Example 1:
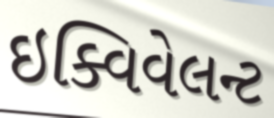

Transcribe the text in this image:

ઇક્વિવેલન્ટ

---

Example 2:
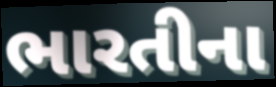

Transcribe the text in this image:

ભારતીના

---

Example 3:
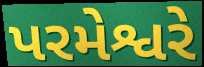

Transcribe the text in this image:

પરમેશ્વરે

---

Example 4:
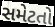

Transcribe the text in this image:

સમેટતો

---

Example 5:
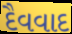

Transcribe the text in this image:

દૈવવાદ